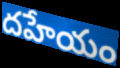
దహేయం